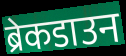
ब्रेकडाउन